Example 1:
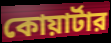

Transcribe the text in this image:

কোয়ার্টার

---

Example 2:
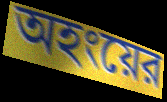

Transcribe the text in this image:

অহংয়ের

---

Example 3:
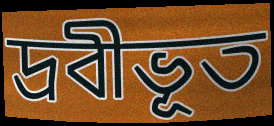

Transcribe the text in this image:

দ্রবীভূত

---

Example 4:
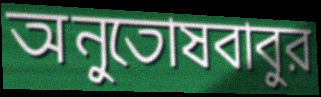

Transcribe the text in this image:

অনুতোষবাবুর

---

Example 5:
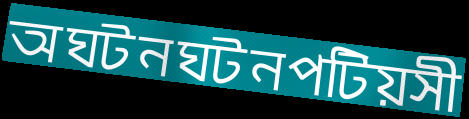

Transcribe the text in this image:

অঘটনঘটনপটিয়সী